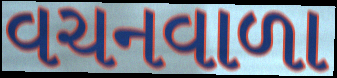
વચનવાળા